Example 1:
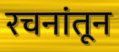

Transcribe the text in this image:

रचनांतून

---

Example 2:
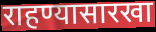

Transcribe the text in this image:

राहण्यासारखा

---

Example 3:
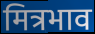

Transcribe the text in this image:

मित्रभाव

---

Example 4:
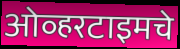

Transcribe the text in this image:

ओव्हरटाइमचे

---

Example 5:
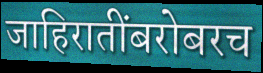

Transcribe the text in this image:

जाहिरातींबरोबरच